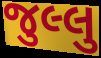
જુલ્લુ